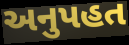
અનુપહત